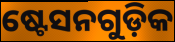
ଷ୍ଟେସନଗୁଡ଼ିକ